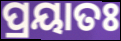
ପ୍ରୟାତଃ